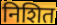
निशित